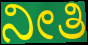
ನೀತಿ